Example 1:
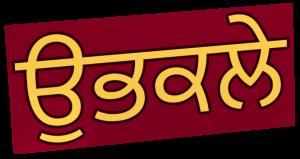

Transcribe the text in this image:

ਉਭਕਲੇ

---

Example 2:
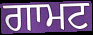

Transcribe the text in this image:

ਗਾਮਟ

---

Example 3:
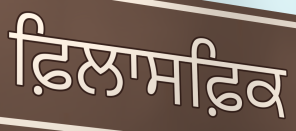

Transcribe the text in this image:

ਫ਼ਿਲਾਸਫ਼ਿਕ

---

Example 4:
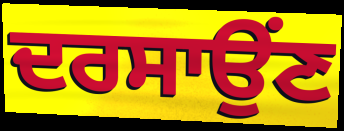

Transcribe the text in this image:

ਦਰਸਾਉਂਣ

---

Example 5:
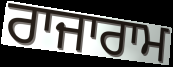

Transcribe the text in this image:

ਰਾਜਾਰਾਮ